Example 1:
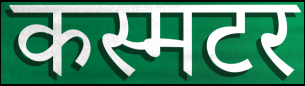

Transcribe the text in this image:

कस्मटर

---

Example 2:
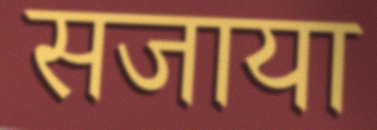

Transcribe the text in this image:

सजाया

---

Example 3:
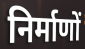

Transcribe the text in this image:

निर्माणों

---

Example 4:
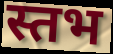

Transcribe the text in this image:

स्तभ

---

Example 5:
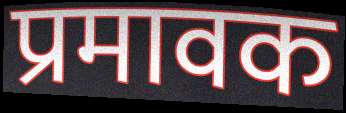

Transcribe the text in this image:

प्रमावक